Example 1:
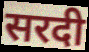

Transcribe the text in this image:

सरदी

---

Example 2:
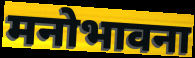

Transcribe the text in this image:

मनोभावना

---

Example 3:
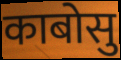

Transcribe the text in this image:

काबोसु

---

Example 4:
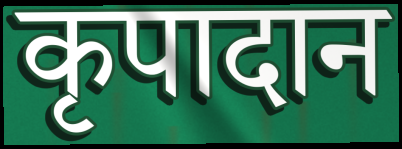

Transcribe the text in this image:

कृपादान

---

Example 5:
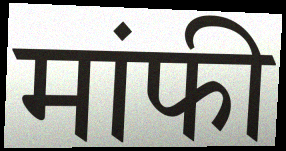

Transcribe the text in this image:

मांफी